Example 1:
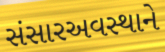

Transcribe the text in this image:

સંસારઅવસ્થાને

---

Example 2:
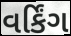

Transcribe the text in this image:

વર્કિંગ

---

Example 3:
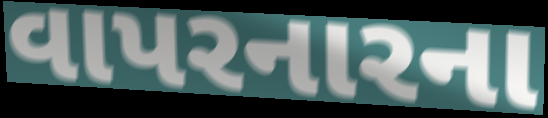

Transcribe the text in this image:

વાપરનારના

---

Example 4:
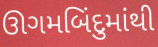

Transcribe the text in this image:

ઊગમબિંદુમાંથી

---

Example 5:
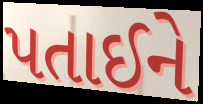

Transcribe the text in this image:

પતાઈને